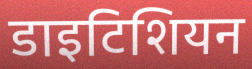
डाइटिशियन